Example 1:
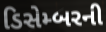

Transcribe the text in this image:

ડિસેમ્બરની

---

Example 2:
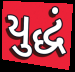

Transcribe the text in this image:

યુદ્ધં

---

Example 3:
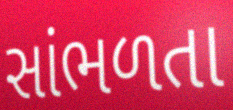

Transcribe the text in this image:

સાંભળતા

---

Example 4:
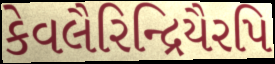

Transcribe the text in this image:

કેવલૈરિન્દ્રિયૈરપિ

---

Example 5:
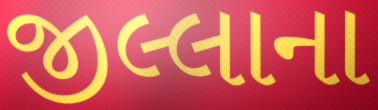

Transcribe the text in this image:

જીલ્લાના